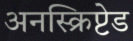
अनस्क्रिप्टेड